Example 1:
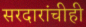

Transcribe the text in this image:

सरदारांचीही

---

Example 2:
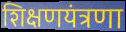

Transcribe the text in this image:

शिक्षणयंत्रणा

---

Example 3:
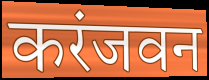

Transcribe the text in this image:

करंजवन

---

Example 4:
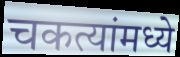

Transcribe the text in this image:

चकत्यांमध्ये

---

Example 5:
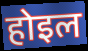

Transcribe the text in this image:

होइल